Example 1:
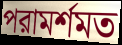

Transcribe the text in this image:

পরামর্শমত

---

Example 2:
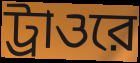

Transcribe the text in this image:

ট্রাওরে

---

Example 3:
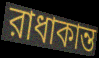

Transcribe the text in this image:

রাধাকান্ত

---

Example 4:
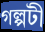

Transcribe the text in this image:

গল্পটী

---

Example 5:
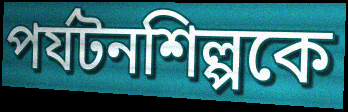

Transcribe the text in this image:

পর্যটনশিল্পকে